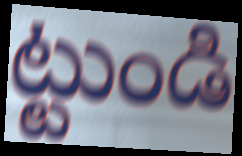
ట్టుండి